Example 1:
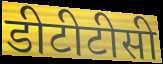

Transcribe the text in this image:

डीटीटीसी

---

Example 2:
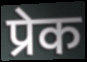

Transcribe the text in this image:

प्रेक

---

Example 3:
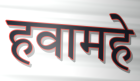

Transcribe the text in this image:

हवामहे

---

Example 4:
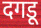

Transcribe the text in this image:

दगडू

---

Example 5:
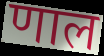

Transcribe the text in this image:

णाल